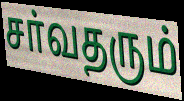
சர்வதரும்